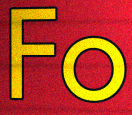
Fo